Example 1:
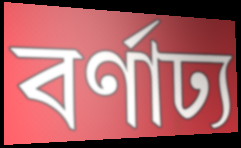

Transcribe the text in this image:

বর্ণাঢ্য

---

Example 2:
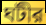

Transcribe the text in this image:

ঘটীর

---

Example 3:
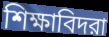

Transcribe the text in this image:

শিক্ষাবিদরা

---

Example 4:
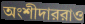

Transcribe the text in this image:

অংশীদাররাও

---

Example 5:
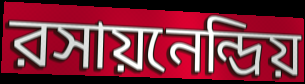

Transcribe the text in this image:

রসায়নেন্দ্রিয়